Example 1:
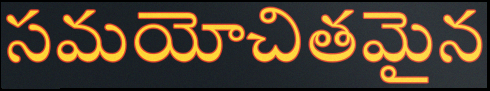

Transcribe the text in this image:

సమయోచితమైన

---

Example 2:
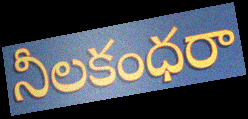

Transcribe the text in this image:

నీలకంధరా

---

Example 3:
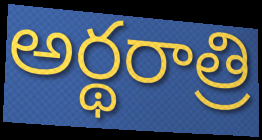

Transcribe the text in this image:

అర్థరాత్రి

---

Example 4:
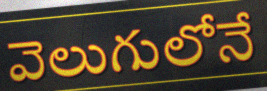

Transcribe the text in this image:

వెలుగులోనే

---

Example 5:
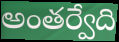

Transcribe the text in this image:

అంతర్వేది